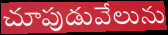
చూపుడువేలును